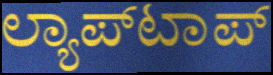
ಲ್ಯಾಪ್‌ಟಾಪ್